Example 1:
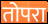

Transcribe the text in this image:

तोपरा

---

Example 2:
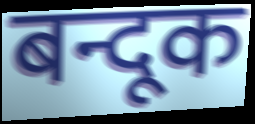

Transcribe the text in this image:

बन्दूक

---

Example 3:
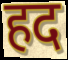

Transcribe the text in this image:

हद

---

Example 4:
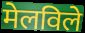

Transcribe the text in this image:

मेलविले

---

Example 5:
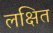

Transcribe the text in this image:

लक्षित